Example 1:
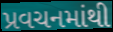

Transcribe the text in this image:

પ્રવચનમાંથી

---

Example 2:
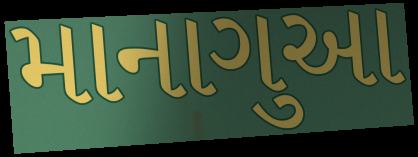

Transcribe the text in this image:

માનાગુઆ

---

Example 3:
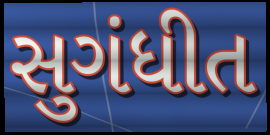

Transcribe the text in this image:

સુગંધીત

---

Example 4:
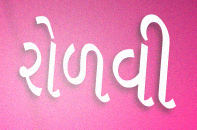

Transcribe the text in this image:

રોળવી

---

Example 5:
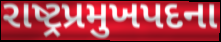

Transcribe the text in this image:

રાષ્ટ્રપ્રમુખપદના